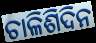
ଚାଳିଶିଦିନ